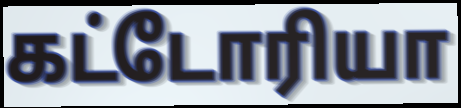
கட்டோரியா